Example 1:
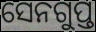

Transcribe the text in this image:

ସେନଗୁପ୍ତ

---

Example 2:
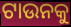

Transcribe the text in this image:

ଟାଉନକୁ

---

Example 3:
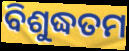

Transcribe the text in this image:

ବିଶୁଦ୍ଧତମ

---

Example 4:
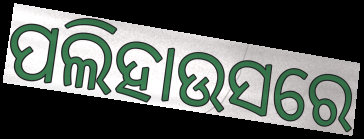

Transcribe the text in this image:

ପଲିହାଉସରେ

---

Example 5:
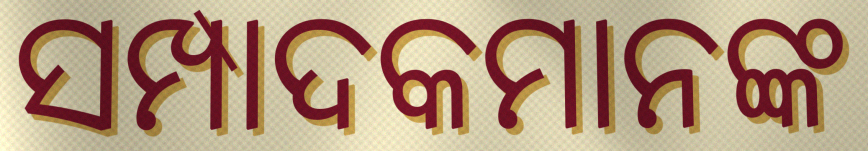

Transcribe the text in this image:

ସମ୍ପାଦକମାନଙ୍କ